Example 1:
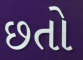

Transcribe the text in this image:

છતો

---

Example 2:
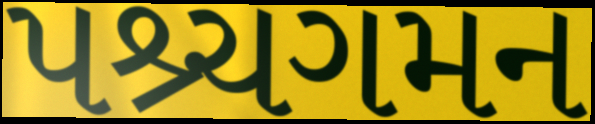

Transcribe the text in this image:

પશ્ર્ચગમન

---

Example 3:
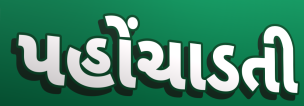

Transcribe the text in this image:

પહોંચાડતી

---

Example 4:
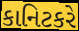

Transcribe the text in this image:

કાનિટકરે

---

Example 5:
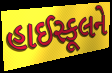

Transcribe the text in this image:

હાઈસ્કૂલને